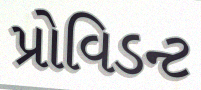
પ્રોવિડન્ટ